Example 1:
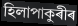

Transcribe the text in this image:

হিলাপাকুৰীৰ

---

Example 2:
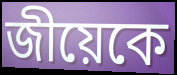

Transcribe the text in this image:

জীয়েকে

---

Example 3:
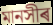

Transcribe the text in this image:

মানসীৰ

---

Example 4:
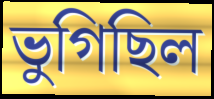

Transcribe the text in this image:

ভুগিছিল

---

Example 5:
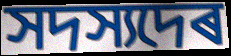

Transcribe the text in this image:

সদস্যদেৰ